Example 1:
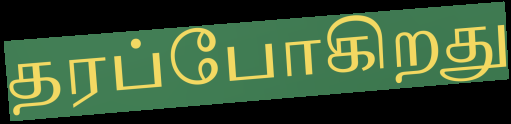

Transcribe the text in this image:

தரப்போகிறது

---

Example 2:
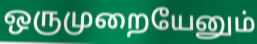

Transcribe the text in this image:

ஒருமுறையேனும்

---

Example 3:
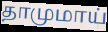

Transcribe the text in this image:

தாமுமாய்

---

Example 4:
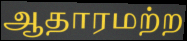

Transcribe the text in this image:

ஆதாரமற்ற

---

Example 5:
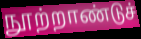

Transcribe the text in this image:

நூற்றாண்டுச்